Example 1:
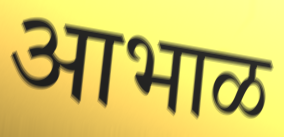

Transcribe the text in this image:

आभाळ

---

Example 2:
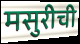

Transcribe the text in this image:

मसुरीची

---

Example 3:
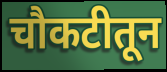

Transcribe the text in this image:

चौकटीतून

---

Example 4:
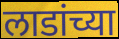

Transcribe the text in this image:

लाडांच्या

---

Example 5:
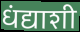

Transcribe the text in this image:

धंद्याशी